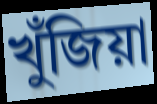
খুঁজিয়া